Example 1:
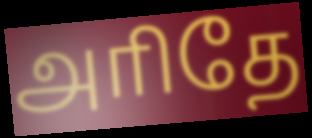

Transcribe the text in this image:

அரிதே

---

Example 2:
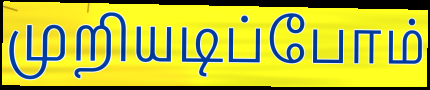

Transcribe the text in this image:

முறியடிப்போம்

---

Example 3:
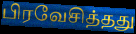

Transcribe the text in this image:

பிரவேசித்தது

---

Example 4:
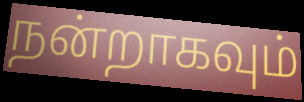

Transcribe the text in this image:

நன்றாகவும்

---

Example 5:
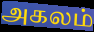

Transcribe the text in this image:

அகலம்